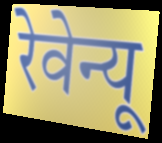
रेवेन्यू